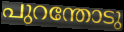
പുറന്തോടു